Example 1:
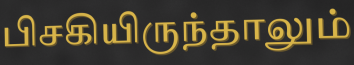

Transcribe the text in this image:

பிசகியிருந்தாலும்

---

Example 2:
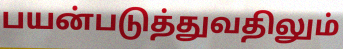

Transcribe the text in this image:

பயன்படுத்துவதிலும்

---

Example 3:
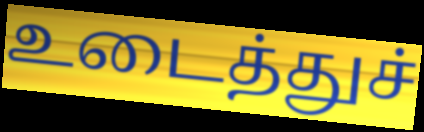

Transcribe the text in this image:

உடைத்துச்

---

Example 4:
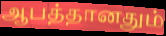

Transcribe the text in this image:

ஆபத்தானதும்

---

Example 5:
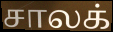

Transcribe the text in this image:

சாலக்